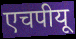
एचपीयू